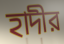
হাদীর